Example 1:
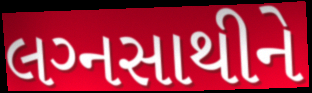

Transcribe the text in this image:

લગ્‍નસાથીને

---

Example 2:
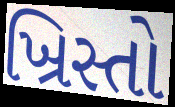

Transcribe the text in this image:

ખ્રિસ્તો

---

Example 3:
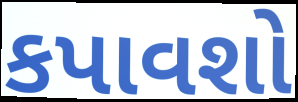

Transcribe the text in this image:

કપાવશો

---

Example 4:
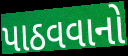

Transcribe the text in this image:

પાઠવવાનો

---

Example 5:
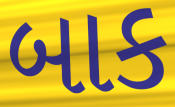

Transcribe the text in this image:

બાક